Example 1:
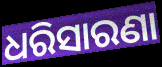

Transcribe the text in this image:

ଧରିସାରଣା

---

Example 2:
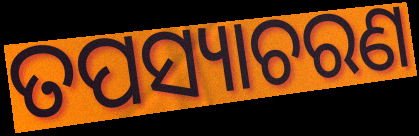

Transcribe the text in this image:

ତପସ୍ୟାଚରଣ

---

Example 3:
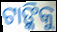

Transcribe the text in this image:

ଟାଙ୍କିକୁ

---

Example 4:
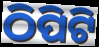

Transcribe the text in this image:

ଠିପିଟି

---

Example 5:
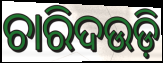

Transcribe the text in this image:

ଚାରିଦଉଡ଼ି